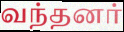
வந்தனர்